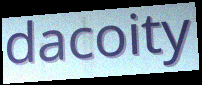
dacoity